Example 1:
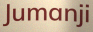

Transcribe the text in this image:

Jumanji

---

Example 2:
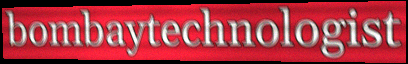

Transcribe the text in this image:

bombaytechnologist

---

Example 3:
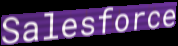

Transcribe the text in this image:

Salesforce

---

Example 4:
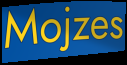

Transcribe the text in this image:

Mojzes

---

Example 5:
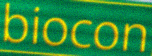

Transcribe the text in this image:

biocon